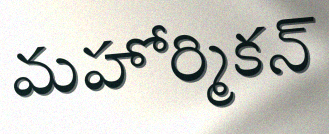
మహోర్మికన్